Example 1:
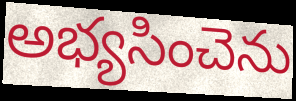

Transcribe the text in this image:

అభ్యసించెను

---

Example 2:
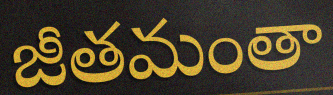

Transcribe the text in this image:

జీతమంతా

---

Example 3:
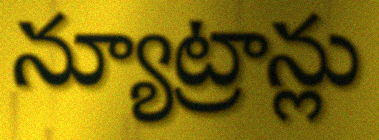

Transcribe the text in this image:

న్యూట్రాన్లు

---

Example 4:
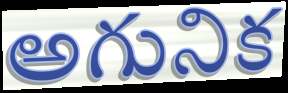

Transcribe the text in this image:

అగునిక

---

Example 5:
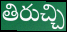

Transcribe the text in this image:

తిరుచ్చి